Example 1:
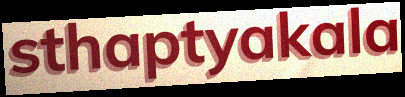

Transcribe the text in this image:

sthaptyakala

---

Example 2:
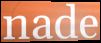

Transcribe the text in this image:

nade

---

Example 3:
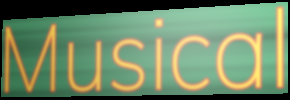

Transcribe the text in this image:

Musical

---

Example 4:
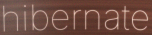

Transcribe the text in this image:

hibernate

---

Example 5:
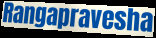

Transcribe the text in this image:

Rangapravesha